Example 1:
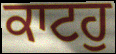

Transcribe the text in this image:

ਕਾਟਹੁ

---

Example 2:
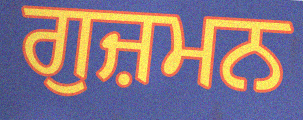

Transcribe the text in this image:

ਗੁਜ਼ਮਨ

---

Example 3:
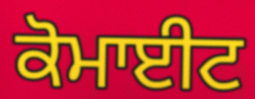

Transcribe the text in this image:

ਕੋਮਾਈਟ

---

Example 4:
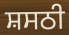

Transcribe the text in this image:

ਸ਼ਸਠੀ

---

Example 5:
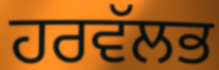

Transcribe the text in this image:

ਹਰਵੱਲਭ